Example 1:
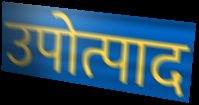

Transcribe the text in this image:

उपोत्पाद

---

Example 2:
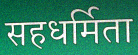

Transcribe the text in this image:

सहधर्मिता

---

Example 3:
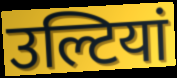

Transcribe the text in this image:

उल्टियां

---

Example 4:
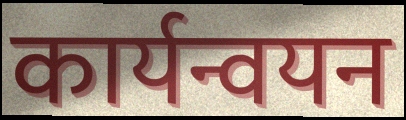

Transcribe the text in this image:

कार्यन्वयन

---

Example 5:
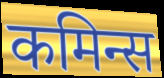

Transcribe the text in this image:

कमिन्स